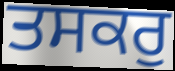
ਤਸਕਰੁ